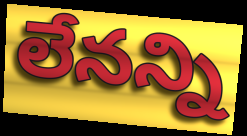
లేనన్ని